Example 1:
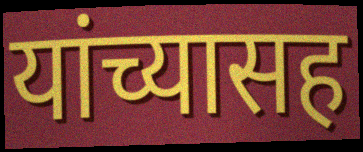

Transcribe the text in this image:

यांच्यासह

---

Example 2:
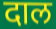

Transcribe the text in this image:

दाल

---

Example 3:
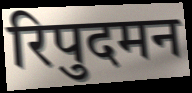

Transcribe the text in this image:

रिपुदमन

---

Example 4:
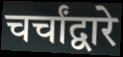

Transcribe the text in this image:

चर्चांद्वारे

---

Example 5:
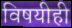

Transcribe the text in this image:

विषयीही